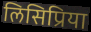
लिसिप्रिया